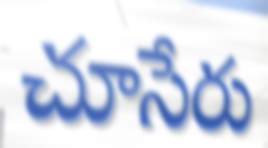
చూసేరు